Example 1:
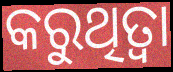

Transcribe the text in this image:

କରୁଥିତ୍ବା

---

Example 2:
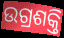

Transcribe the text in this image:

ଉଗ୍ରଶକ୍ତି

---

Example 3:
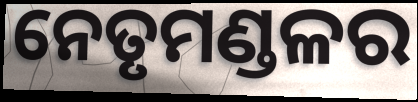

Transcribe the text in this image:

ନେତୃମଣ୍ଡଳର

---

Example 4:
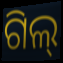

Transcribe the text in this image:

ଗିଲ୍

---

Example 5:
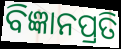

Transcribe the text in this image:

ବିଜ୍ଞାନପ୍ରତି